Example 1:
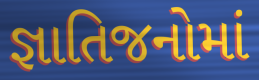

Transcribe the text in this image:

જ્ઞાતિજનોમાં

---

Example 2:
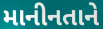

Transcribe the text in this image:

માનીનતાને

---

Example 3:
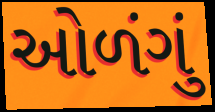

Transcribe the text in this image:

ઓળંગું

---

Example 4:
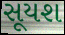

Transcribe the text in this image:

સૂયશ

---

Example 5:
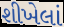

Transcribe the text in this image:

શીખેલાં